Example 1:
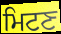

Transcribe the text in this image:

ਮਿਟਣ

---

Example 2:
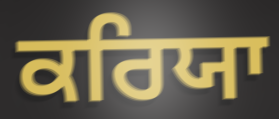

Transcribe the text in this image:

ਕਰਿਯਾ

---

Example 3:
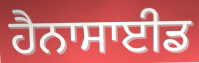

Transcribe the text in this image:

ਹੈਨਾਸਾਈਡ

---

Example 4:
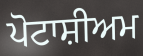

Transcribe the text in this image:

ਪੋਟਾਸ਼ੀਅਮ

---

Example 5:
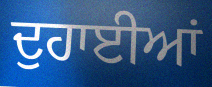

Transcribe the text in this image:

ਦੁਹਾਈਆਂ